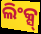
ଲିଂକ୍ସ୍